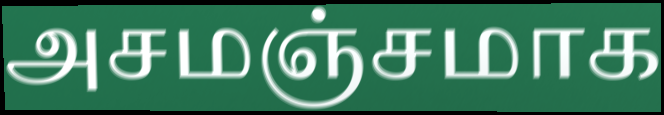
அசமஞ்சமாக